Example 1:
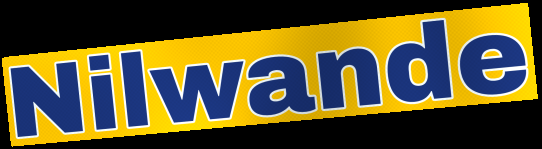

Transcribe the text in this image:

Nilwande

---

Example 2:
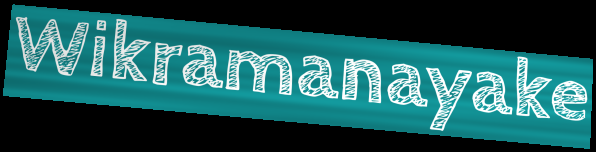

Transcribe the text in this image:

Wikramanayake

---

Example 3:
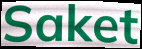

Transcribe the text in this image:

Saket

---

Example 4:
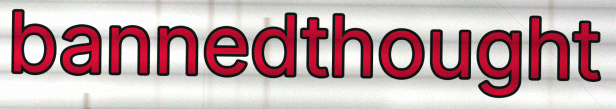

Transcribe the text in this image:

bannedthought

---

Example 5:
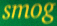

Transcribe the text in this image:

smog